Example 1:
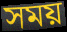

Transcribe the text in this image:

সময়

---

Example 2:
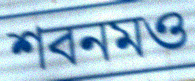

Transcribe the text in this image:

শবনমও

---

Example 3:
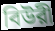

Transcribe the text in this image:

বিউরী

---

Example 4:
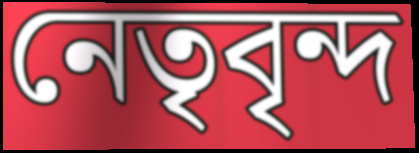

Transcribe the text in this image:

নেতৃবৃন্দ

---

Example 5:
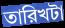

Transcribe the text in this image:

তারিখটা